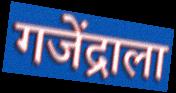
गजेंद्राला